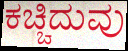
ಕಚ್ಚಿದುವು